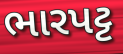
ભારપટ્ટ